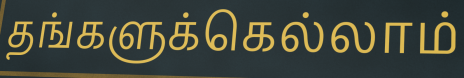
தங்களுக்கெல்லாம்